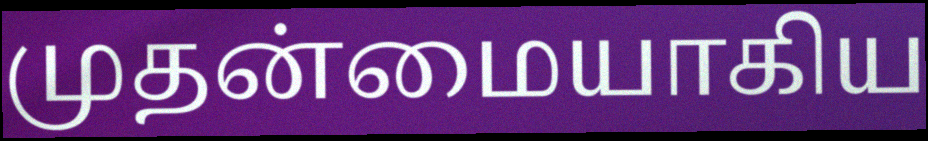
முதன்மையாகிய